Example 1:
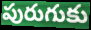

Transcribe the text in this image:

పురుగుకు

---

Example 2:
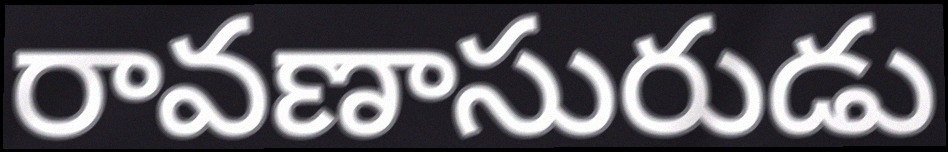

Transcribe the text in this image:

రావణాసురుడు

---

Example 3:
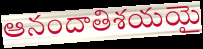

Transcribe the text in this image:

ఆనందాతిశయయై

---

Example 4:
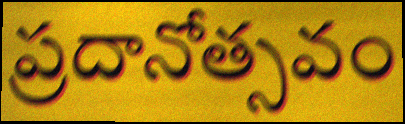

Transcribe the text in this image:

ప్రదానోత్సవం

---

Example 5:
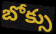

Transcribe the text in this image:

బోక్సు